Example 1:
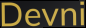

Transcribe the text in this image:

Devni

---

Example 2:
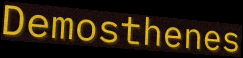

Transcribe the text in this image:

Demosthenes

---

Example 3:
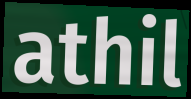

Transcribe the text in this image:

athil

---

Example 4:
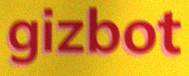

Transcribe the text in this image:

gizbot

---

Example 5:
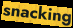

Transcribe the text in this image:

snacking